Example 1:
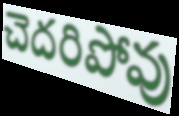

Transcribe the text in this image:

చెదరిపోవు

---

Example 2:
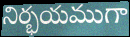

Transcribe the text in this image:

నిర్భయముగా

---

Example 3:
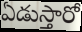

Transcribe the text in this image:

ఏడుస్తారో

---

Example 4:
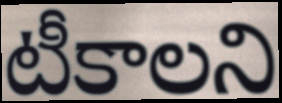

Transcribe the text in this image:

టీకాలని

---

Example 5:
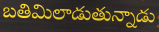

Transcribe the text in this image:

బతిమిలాడుతున్నాడు